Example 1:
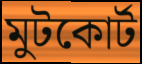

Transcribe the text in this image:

মুটকোর্ট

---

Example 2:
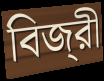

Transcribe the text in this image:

বিজ্‌রী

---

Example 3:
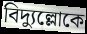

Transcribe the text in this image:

বিদ্যুল্লোকে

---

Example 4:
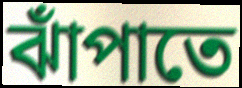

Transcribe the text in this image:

ঝাঁপাতে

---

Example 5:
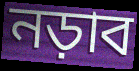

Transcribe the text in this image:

নড়াব